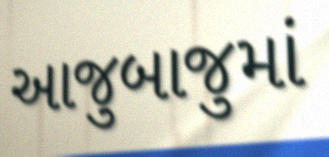
આજુબાજુમાં